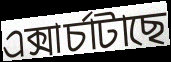
এক্সাৰ্চাটাছে